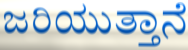
ಜರಿಯುತ್ತಾನೆ